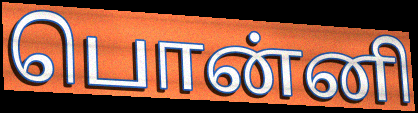
பொன்னி